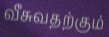
வீசுவதற்கும்